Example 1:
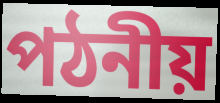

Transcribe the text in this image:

পঠনীয়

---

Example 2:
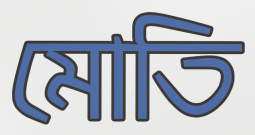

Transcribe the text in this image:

মোতি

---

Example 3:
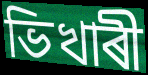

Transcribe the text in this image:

ভিখাৰী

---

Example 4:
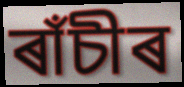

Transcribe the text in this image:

ৰাঁচীৰ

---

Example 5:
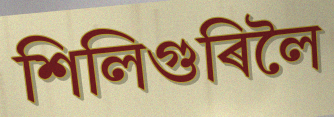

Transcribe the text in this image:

শিলিগুৰিলৈ